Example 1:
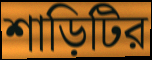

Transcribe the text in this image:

শাড়িটির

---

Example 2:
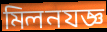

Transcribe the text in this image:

মিলনযজ্ঞ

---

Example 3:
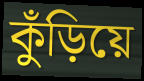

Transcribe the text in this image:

কুঁড়িয়ে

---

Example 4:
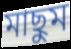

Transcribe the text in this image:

মাছুম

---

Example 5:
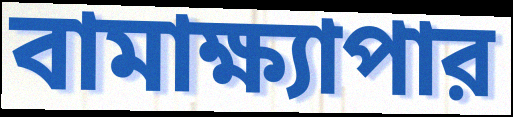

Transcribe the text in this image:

বামাক্ষ্যাপার